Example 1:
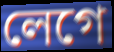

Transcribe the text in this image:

লেগে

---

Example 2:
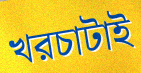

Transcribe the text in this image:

খরচাটাই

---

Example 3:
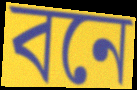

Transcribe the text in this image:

বনে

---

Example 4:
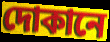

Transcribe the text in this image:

দোকানে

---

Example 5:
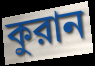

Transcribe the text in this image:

কুরান